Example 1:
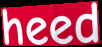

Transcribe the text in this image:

heed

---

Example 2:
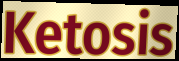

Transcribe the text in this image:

Ketosis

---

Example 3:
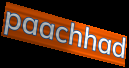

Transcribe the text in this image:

paachhad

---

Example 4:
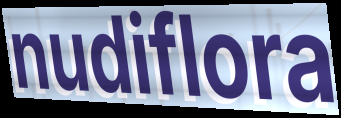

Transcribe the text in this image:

nudiflora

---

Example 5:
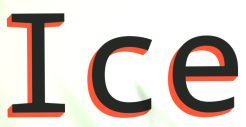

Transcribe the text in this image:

Ice